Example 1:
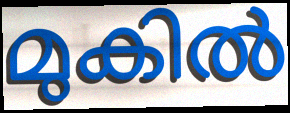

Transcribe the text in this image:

മുകിൽ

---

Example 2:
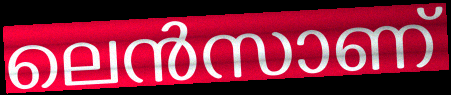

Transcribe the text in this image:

ലെൻസാണ്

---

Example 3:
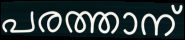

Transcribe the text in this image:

പരത്താന്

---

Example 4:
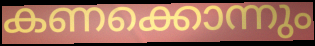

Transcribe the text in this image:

കണക്കൊന്നും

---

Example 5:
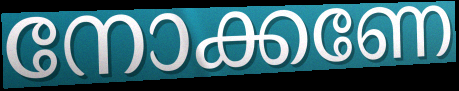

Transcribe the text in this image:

നോക്കണേ